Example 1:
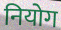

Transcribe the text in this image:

नियोग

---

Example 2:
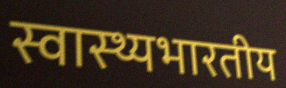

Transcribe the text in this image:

स्वास्थ्यभारतीय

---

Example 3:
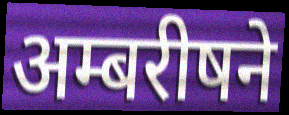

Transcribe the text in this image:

अम्बरीषने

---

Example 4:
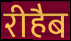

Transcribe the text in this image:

रीहैब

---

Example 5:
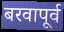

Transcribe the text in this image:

बरवापूर्व